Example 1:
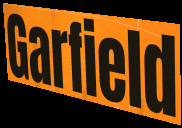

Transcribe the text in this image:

Garfield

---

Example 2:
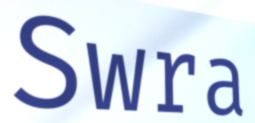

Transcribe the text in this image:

Swra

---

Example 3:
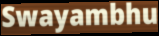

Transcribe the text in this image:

Swayambhu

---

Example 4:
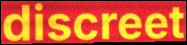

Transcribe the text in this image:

discreet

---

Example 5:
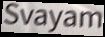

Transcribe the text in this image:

Svayam